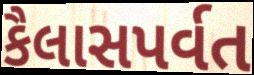
કૈલાસપર્વત